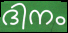
ദിനം